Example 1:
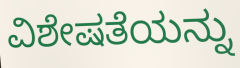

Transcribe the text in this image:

ವಿಶೇಷತೆಯನ್ನು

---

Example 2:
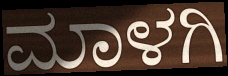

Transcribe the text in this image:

ಮಾಳಗಿ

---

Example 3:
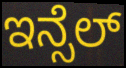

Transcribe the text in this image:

ಇನ್ಸೆಲ್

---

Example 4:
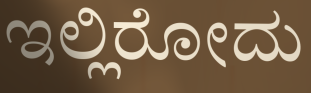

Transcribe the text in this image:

ಇಲ್ಲಿರೋದು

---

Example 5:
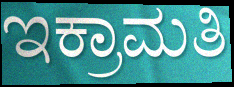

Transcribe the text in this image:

ಇಕ್ರಾಮತಿ